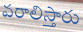
వరాలిస్తారు